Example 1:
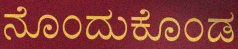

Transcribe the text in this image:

ನೊಂದುಕೊಂಡ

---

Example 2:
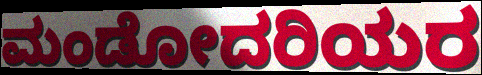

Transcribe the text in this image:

ಮಂಡೋದರಿಯರ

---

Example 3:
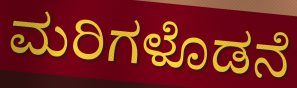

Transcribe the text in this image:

ಮರಿಗಳೊಡನೆ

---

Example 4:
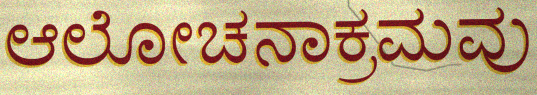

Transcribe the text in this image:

ಆಲೋಚನಾಕ್ರಮವು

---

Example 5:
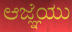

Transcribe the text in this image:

ಆಜ್ಞೆಯು